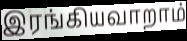
இரங்கியவாறாம்